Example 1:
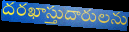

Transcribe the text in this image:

దరఖాస్తుదారులను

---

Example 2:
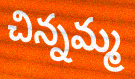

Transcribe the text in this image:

చిన్నమ్మ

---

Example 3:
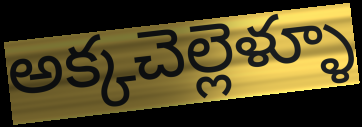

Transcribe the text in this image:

అక్కచెల్లెళ్ళూ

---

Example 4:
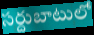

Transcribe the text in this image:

సర్దుబాటులో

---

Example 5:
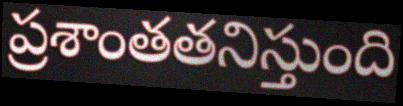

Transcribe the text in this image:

ప్రశాంతతనిస్తుంది